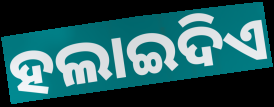
ହଲାଇଦିଏ